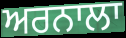
ਅਰਨਾਲਾ